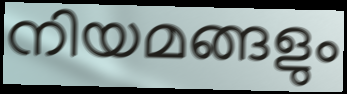
നിയമങ്ങളും